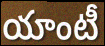
యాంటీ